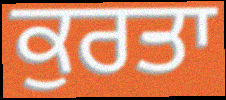
ਕੁਰਤਾ